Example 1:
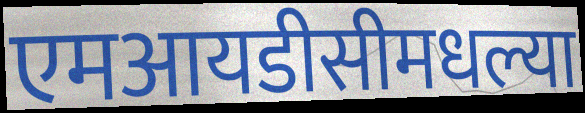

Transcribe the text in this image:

एमआयडीसीमधल्या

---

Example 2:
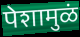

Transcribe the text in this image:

पेशामुळं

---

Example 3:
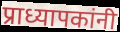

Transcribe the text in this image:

प्राध्यापकांनी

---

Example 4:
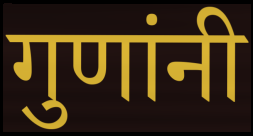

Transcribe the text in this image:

गुणांनी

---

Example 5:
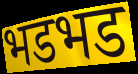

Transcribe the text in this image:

भडभड